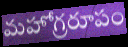
మహోగ్రరూపం